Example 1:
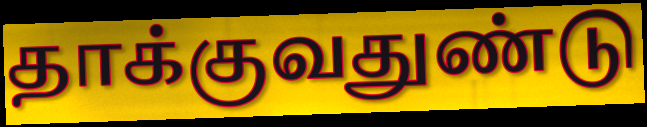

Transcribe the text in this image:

தாக்குவதுண்டு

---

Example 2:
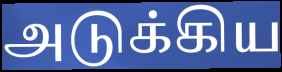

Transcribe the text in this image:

அடுக்கிய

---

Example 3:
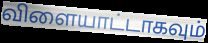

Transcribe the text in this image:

விளையாட்டாகவும்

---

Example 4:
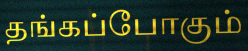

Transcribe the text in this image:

தங்கப்போகும்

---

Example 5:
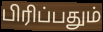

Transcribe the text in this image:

பிரிப்பதும்